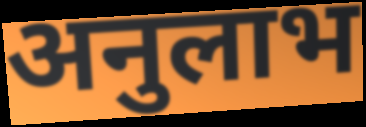
अनुलाभ